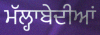
ਮੱਲ੍ਹਾਬੇਦੀਆਂ